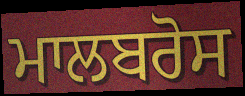
ਮਾਲਬਰੋਸ